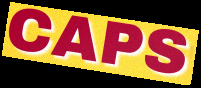
CAPS